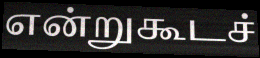
என்றுகூடச்